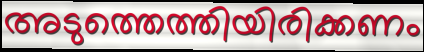
അടുത്തെത്തിയിരിക്കണം